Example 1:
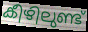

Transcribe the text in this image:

കീഴിലുണ്ട്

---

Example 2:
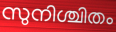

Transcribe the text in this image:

സുനിശ്ചിതം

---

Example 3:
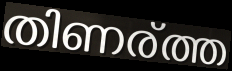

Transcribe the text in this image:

തിണര്ത്ത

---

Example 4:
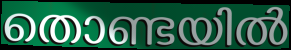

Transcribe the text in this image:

തൊണ്ടയിൽ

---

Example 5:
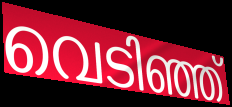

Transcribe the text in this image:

വെടിഞ്ഞ്